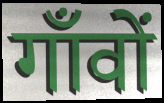
गाँवों